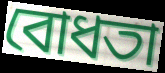
বোধতা